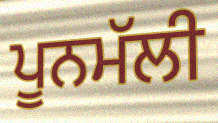
ਪੂਨਮੱਲੀ